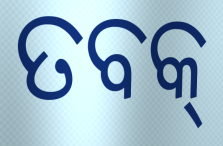
ତବକ୍